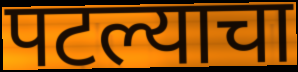
पटल्याचा